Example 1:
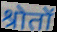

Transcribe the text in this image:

श्रोतों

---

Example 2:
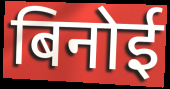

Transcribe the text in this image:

बिनोई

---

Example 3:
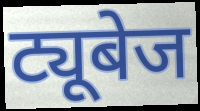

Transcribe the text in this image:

ट्यूबेज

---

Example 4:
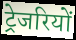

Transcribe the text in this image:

ट्रेजरियों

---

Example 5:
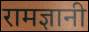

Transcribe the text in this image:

रामज्ञानी